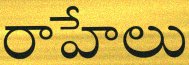
రాహేలు